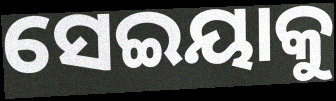
ସେଇୟାକୁ